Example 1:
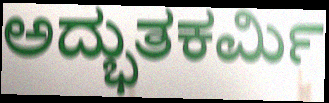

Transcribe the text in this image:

ಅದ್ಭುತಕರ್ಮಿ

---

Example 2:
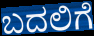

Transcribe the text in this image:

ಬದಲಿಗೆ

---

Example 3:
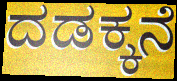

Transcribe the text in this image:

ದಡಕ್ಕನೆ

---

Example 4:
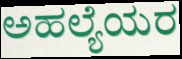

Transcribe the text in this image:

ಅಹಲ್ಯೆಯರ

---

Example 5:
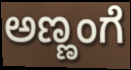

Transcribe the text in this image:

ಅಣ್ಣಂಗೆ